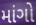
માંગો